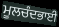
ਮੂਲਚੰਦਭਾਈ